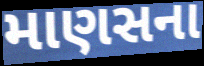
માણસના